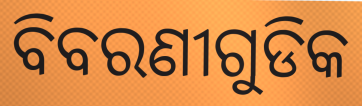
ବିବରଣୀଗୁଡିକ